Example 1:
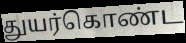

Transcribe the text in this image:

துயர்கொண்ட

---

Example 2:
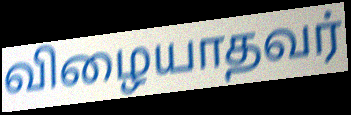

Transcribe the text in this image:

விழையாதவர்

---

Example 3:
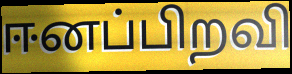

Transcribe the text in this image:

ஈனப்பிறவி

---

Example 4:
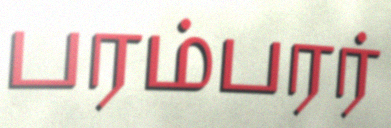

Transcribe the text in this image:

பரம்பரர்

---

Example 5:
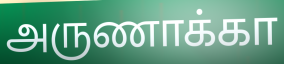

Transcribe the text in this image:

அருணாக்கா